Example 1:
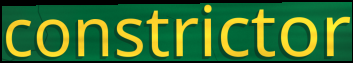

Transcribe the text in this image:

constrictor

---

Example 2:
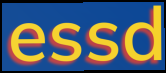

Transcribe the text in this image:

essd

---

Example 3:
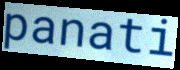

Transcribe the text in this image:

panati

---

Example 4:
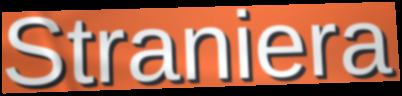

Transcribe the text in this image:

Straniera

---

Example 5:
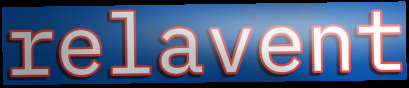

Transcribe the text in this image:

relavent